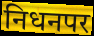
निधनपर